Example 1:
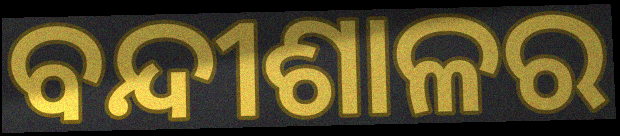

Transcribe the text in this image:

ବନ୍ଦୀଶାଳର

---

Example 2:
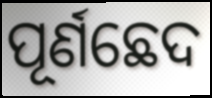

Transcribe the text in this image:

ପୂର୍ଣଛେଦ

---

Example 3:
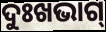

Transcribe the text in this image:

ଦୁଃଖଭାଗ୍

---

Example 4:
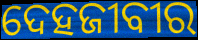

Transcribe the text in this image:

ଦେହଜୀବୀର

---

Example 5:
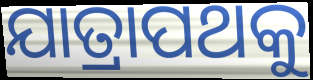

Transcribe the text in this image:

ଯାତ୍ରାପଥକୁ